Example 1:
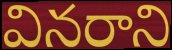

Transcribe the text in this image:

వినరాని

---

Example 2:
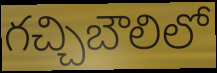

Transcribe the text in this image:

గచ్చిబౌలిలో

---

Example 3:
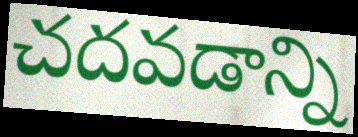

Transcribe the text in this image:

చదవడాన్ని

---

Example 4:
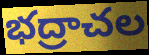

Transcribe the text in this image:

భద్రాచల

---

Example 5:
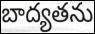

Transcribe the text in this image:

బాద్యతను